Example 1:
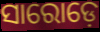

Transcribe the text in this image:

ସାରୋଡ଼େ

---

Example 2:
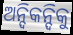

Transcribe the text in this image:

ଅନ୍ଦିକନ୍ଦିକୁ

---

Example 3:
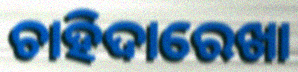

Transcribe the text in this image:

ଚାହିଦାରେଖା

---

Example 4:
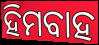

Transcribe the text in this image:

ହିମବାହ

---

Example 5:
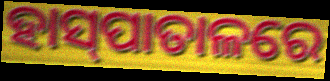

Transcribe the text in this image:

ହାସ୍‌ପାତାଳରେ